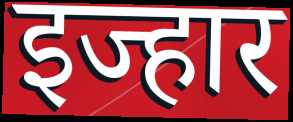
इज्हार